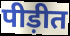
पीड़ीत